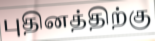
புதினத்திற்கு